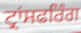
ਟ੍ਰਾਂਸਫਰਿੰਗ